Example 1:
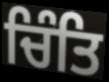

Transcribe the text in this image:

ਚਿੰਤਿ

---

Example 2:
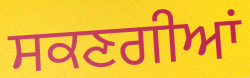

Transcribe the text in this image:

ਸਕਣਗੀਆਂ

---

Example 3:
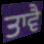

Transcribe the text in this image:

ਤਾਵੈ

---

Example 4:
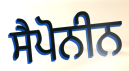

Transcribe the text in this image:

ਸੈਪੋਨੀਨ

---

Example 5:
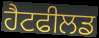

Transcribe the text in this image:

ਹੈਟਫੀਲਡ